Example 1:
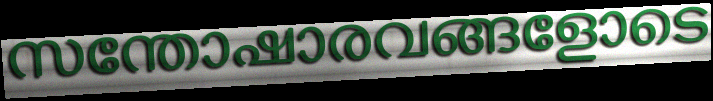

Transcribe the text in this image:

സന്തോഷാരവങ്ങളോടെ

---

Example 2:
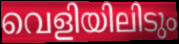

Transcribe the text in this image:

വെളിയിലിടും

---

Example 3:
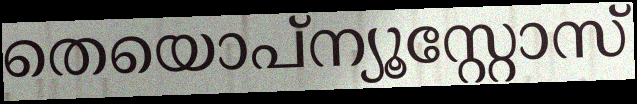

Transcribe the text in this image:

തെയൊപ്ന്യൂസ്റ്റോസ്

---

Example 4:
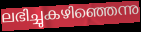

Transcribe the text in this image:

ലഭിച്ചുകഴിഞ്ഞെന്നു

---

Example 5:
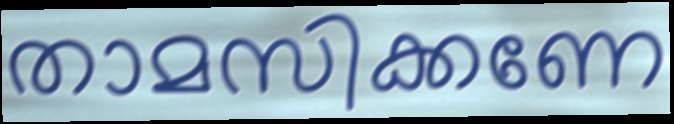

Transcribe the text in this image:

താമസിക്കണേ